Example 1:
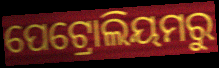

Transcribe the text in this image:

ପେଟ୍ରୋଲିୟମରୁ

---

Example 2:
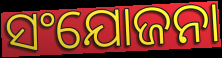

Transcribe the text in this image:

ସଂଯୋଜନା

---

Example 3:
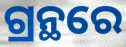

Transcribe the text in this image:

ଗ୍ରନ୍ଥରେ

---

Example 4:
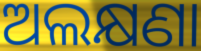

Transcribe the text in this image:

ଅଲକ୍ଷଣା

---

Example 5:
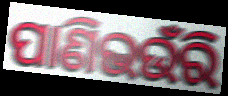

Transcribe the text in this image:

ପାଣିଭଉଁରି